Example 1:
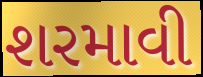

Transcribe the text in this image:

શરમાવી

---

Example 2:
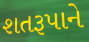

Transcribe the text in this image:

શતરૂપાને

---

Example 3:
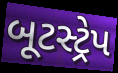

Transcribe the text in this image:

બૂટસ્ટ્રેપ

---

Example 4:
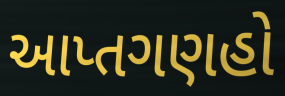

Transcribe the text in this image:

આપ્તગણહો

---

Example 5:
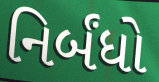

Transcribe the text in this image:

નિર્બંધો